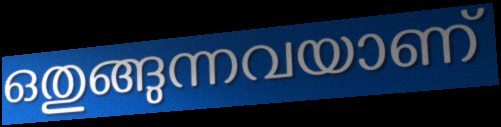
ഒതുങ്ങുന്നവയാണ്